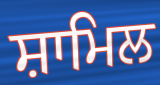
ਸ਼ਾਮਿਲ